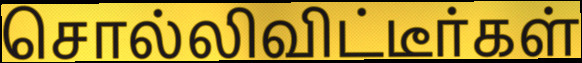
சொல்லிவிட்டீர்கள்